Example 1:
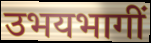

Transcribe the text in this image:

उभयभागीं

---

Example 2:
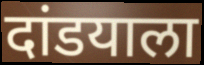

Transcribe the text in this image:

दांडयाला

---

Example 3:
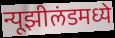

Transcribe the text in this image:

न्यूझीलंडमध्ये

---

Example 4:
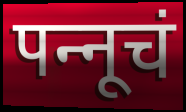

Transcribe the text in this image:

पन्नूचं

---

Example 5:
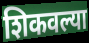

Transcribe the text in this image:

शिकवल्या